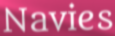
Navies